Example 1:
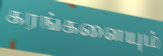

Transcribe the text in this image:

கரங்களையும்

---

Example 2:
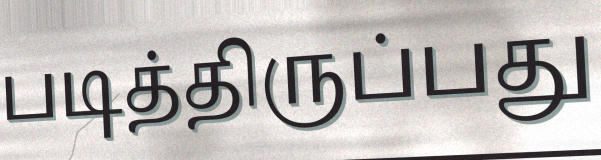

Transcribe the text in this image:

படித்திருப்பது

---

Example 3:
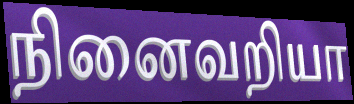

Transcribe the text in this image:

நினைவறியா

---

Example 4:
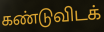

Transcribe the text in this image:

கண்டுவிடக்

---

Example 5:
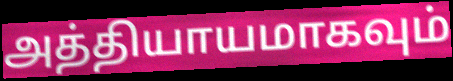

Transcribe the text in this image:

அத்தியாயமாகவும்